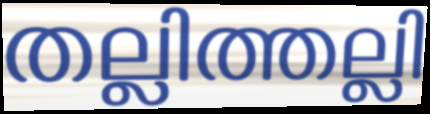
തല്ലിത്തല്ലി